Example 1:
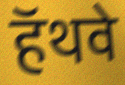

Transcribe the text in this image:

हॅथवे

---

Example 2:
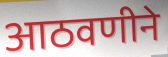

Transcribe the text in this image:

आठवणीने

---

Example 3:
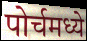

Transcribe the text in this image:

पोर्चमध्ये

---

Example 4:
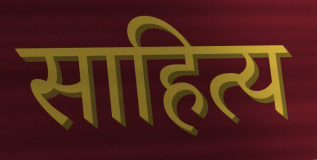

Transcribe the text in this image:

साहित्य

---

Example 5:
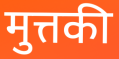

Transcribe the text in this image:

मुत्तकी